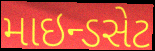
માઇન્ડસેટ